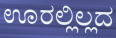
ಊರಲ್ಲಿಲ್ಲದ